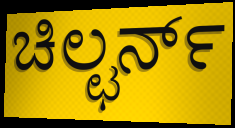
ಚಿಲ್ಟರ್ನ್